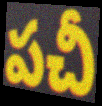
పచీ